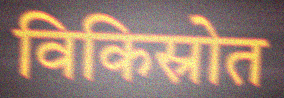
विकिस्रोत